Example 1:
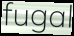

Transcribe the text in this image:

fugal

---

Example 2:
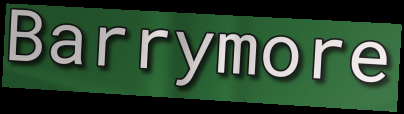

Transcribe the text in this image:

Barrymore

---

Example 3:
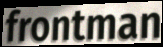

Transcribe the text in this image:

frontman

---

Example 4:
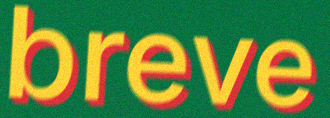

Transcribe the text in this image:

breve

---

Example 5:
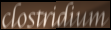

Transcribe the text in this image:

clostridium